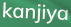
kanjiya